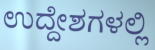
ಉದ್ದೇಶಗಳಲ್ಲಿ